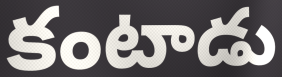
కంటాడు